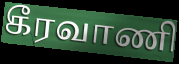
கீரவாணி